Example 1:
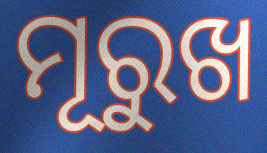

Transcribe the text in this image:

ମୂରୁଖ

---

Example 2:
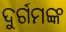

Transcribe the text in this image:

ଦୁର୍ଗମଙ୍କ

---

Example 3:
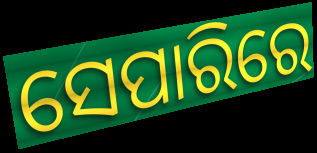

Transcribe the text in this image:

ସେପାରିରେ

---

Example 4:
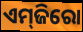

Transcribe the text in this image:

ଏମ୍‌ଜିରୋ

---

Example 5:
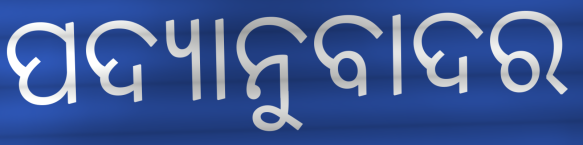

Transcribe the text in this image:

ପଦ୍ୟାନୁବାଦର